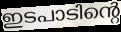
ഇടപാടിന്റെ